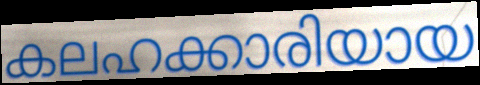
കലഹക്കാരിയായ